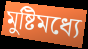
মুষ্টিমধ্যে